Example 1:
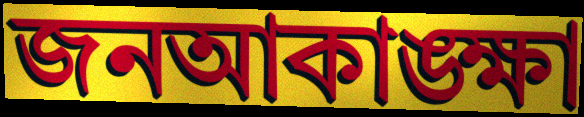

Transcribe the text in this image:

জনআকাঙ্ক্ষা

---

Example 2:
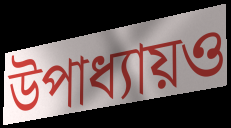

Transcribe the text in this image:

উপাধ্যায়ও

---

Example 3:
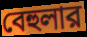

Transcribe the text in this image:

বেহুলার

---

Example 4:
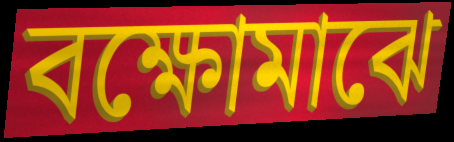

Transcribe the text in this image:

বক্ষোমাঝে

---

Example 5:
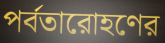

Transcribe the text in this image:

পর্বতারোহণের